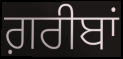
ਗ਼ਰੀਬਾਂ